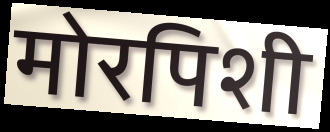
मोरपिशी